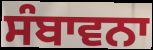
ਸੰਬਾਵਨਾ